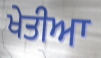
ਖੇਤੀਆ